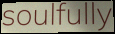
soulfully